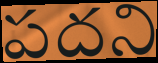
పదని